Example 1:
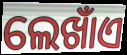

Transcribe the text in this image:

ଲେଖାଁଏ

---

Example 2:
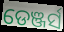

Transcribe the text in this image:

ଡେଞ୍ଜର୍ସ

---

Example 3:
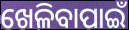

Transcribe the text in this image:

ଖେଳିବାପାଇଁ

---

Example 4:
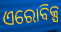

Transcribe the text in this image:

ଏରୋବିକ୍ସ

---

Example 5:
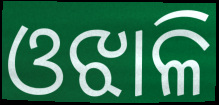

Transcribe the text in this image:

ଓଝାଳି